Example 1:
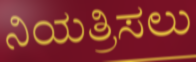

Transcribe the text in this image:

ನಿಯತ್ರಿಸಲು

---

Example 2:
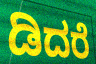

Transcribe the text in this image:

ಡಿದರೆ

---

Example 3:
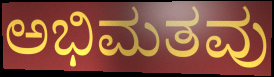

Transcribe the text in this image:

ಅಭಿಮತವು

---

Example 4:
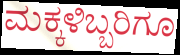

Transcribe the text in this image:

ಮಕ್ಕಳಿಬ್ಬರಿಗೂ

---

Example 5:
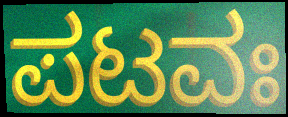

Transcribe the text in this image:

ಪಟವಃ